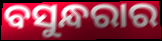
ବସୁନ୍ଧରାର